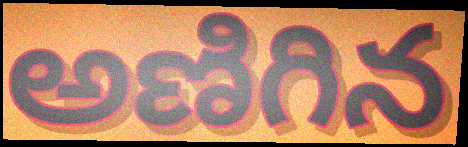
అణిగిన